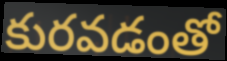
కురవడంతో